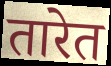
तारेत